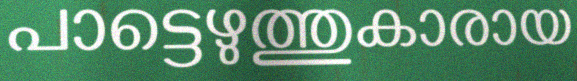
പാട്ടെഴുത്തുകാരായ